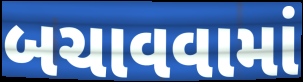
બચાવવામાં